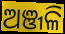
ଅଞ୍ଜଳି